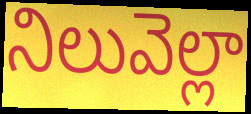
నిలువెల్లా